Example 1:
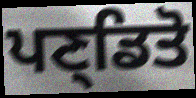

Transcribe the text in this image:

ਪਣ੍ਡਿਤੋ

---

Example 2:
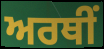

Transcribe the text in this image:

ਅਰਥੀਂ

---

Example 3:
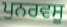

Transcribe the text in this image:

ਪੁਨਰਵਸੂ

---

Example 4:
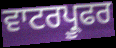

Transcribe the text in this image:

ਵਾਟਰਪ੍ਰੂਫਰ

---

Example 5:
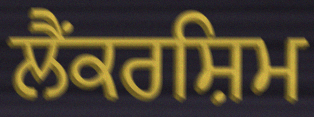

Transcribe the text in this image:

ਲੈਂਕਰਸ਼ਿਮ